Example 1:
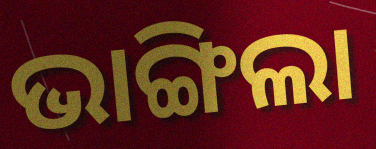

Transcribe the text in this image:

ଭାଙ୍ଗିଲା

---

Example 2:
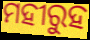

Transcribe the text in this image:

ମହୀରୁହ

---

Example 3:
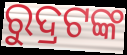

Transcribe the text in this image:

ରୁଦ୍ରଟଙ୍କ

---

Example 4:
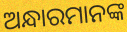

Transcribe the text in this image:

ଅନ୍ଧାରମାନଙ୍କ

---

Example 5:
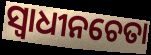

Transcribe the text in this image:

ସ୍ବାଧୀନଚେତା